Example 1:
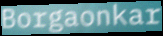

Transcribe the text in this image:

Borgaonkar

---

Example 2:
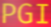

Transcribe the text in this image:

PGI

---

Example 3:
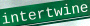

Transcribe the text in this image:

intertwine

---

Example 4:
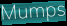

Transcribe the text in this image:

Mumps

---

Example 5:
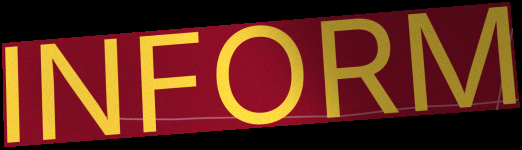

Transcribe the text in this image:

INFORM